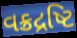
વક્રદ્રષ્ટિ